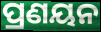
ପ୍ରଣୟନ